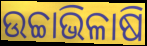
ଉଚ୍ଚାଭିଳାଷି